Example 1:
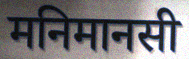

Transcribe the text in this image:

मनिमानसी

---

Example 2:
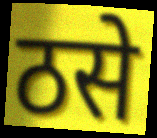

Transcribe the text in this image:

ठसे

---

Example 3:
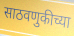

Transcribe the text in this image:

साठवणुकीच्या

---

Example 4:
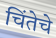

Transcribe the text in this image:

चिंतेचे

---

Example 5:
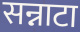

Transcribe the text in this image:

सन्नाटा